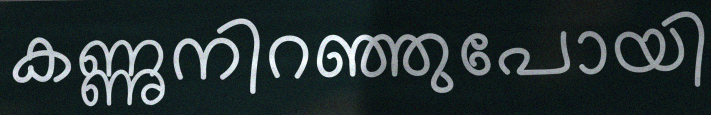
കണ്ണുനിറഞ്ഞുപോയി